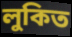
লুকিত